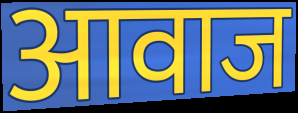
आवाज